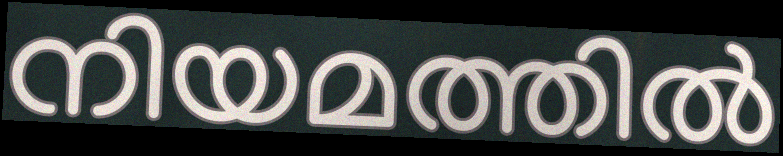
നിയമത്തിൽ